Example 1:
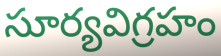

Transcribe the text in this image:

సూర్యవిగ్రహం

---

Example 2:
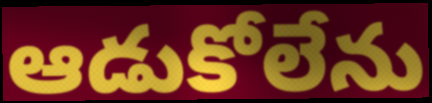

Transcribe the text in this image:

ఆడుకోలేను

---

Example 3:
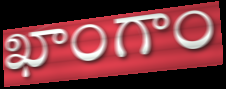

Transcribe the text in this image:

ఖాంగాం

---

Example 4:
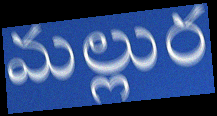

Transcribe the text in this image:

మల్లుర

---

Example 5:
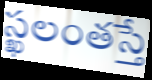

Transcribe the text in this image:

స్ఖలంతస్తే